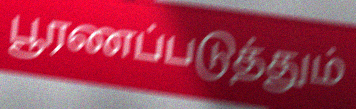
பூரணப்படுத்தும்